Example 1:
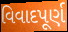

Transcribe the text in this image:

વિવાદપૂર્ણ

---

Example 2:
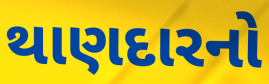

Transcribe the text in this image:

થાણદારનો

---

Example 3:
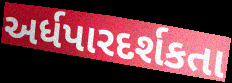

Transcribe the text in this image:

અર્ધપારદર્શકતા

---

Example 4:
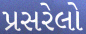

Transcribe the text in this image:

પ્રસરેલો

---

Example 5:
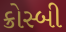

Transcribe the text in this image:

ક્રોસ્બી